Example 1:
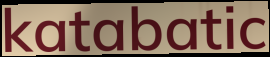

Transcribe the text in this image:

katabatic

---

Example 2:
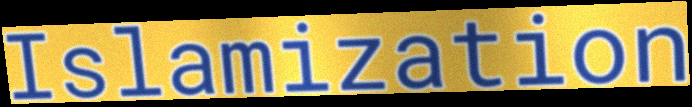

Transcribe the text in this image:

Islamization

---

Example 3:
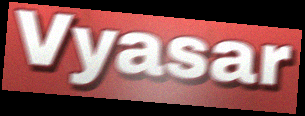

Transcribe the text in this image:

Vyasar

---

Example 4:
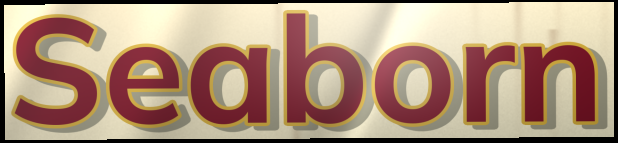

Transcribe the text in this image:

Seaborn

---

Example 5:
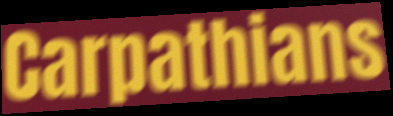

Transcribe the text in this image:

Carpathians